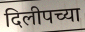
दिलीपच्या